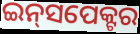
ଇନ୍‌ସପେକ୍ଟର